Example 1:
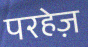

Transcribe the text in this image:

परहेज़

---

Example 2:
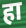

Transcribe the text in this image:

हा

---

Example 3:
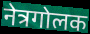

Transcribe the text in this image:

नेत्रगोलक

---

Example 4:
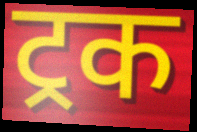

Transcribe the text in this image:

ट्रक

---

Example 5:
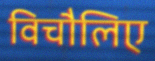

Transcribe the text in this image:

विचौलिए